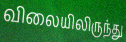
விலையிலிருந்து